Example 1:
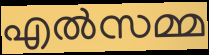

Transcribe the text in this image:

എൽസമ്മ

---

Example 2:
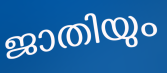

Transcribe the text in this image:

ജാതിയും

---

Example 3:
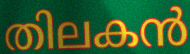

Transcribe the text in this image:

തിലകൻ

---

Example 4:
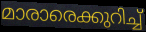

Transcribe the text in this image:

മാരാരെക്കുറിച്ച്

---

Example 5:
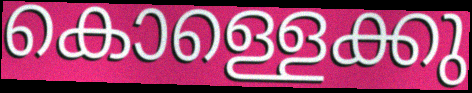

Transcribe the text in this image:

കൊള്ളെക്കു